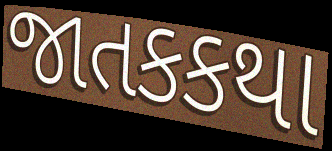
જાતકકથા